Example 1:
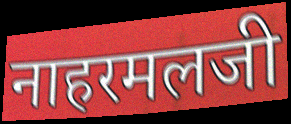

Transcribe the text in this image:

नाहरमलजी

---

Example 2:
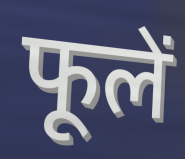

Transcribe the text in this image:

फूलें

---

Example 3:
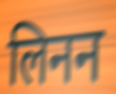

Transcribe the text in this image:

लिनन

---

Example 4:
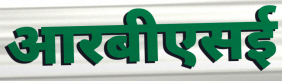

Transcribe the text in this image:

आरबीएसई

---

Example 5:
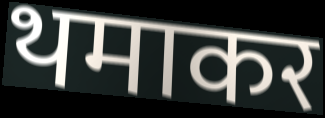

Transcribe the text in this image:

थमाकर